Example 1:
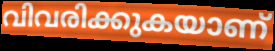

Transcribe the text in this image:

വിവരിക്കുകയാണ്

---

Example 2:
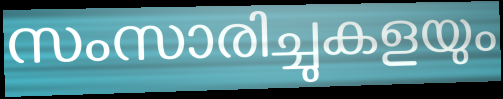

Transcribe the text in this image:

സംസാരിച്ചുകളയും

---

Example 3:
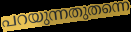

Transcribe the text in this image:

പറയുന്നതുതന്നെ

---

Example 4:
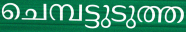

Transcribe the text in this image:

ചെമ്പട്ടുടുത്ത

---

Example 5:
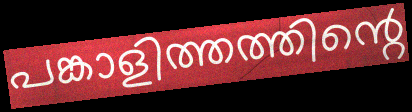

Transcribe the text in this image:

പങ്കാളിത്തത്തിന്റെ